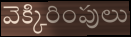
వెక్కిరింపులు